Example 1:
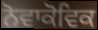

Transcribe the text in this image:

ਨੋਵਾਕੋਵਿਕ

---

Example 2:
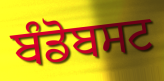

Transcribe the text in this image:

ਬੰਡੋਬਸਟ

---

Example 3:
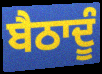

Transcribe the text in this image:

ਬੈਠਾਦੂੰ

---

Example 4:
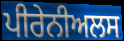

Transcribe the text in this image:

ਪੀਰੇਨੀਅਲਸ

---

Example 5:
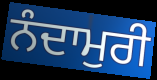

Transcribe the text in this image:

ਨੰਦਾਮੁਰੀ